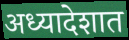
अध्यादेशात